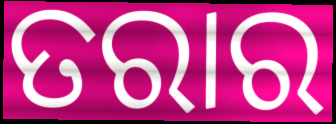
ତରାର